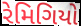
રેમિગિયો